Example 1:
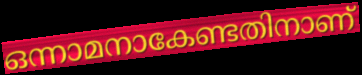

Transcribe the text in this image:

ഒന്നാമനാകേണ്ടതിനാണ്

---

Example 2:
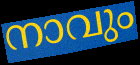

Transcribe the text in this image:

നാവും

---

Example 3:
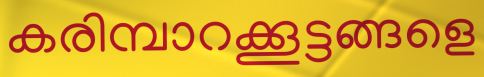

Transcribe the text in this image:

കരിമ്പാറക്കൂട്ടങ്ങളെ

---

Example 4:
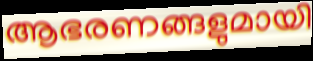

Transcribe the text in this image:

ആഭരണങ്ങളുമായി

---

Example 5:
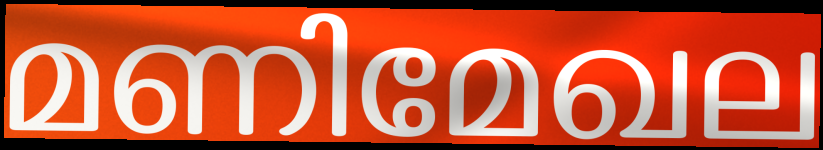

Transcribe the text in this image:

മണിമേഖല